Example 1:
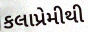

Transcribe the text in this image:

કલાપ્રેમીથી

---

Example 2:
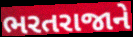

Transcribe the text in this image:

ભરતરાજાને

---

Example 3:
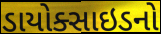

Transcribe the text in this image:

ડાયોક્સાઇડનો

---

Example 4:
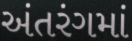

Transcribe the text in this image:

અંતરંગમાં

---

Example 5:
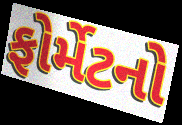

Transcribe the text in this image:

ફોર્મેટનો